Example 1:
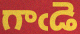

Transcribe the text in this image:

గాఁడె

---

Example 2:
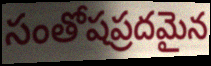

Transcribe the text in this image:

సంతోషప్రదమైన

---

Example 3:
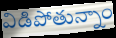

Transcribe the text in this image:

విడిపోతున్నాం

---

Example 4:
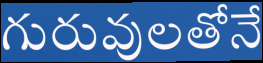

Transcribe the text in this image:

గురువులతోనే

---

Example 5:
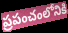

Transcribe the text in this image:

ప్రపంచంలోనికి